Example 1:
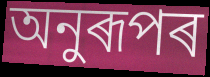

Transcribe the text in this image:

অনুৰূপৰ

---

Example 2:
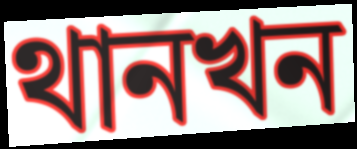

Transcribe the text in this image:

থানখন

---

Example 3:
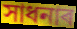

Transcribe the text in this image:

সাধনাৰ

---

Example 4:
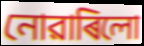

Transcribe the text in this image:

নোৱাৰিলো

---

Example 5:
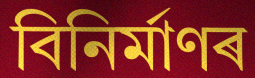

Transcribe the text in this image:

বিনিৰ্মাণৰ